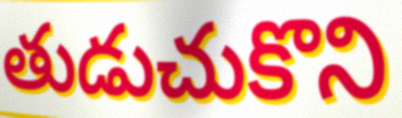
తుడుచుకొని